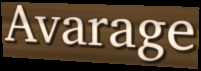
Avarage